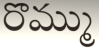
రొమ్ము